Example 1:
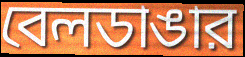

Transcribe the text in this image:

বেলডাঙার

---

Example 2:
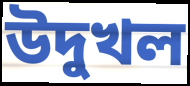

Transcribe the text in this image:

উদুখল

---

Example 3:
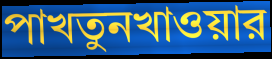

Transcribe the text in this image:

পাখতুনখাওয়ার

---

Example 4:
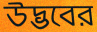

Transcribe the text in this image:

উদ্ভবের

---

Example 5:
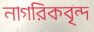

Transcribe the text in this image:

নাগরিকবৃন্দ